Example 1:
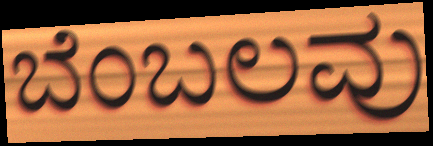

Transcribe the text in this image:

ಬೆಂಬಲವು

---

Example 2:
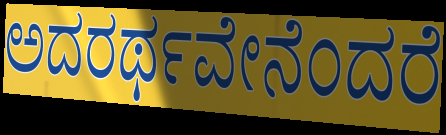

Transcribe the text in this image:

ಅದರರ್ಥವೇನೆಂದರೆ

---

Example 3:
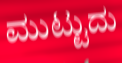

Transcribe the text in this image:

ಮುಟ್ಟುದು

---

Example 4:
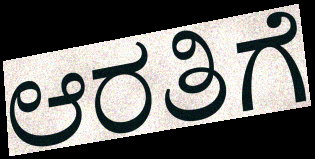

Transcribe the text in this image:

ಆರತಿಗೆ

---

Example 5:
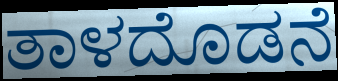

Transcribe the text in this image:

ತಾಳದೊಡನೆ